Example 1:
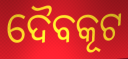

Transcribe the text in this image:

ଦୈବକୂଟ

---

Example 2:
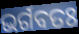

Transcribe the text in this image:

ଭର୍ଗବତଃ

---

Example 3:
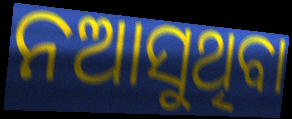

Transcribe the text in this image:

ନଆସୁଥିବା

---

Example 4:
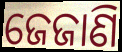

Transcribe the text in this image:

ଜେଜାଣି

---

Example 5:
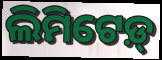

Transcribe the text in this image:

ଲିମିଟେଡ଼୍